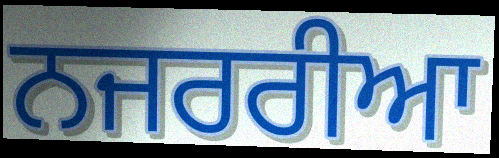
ਨਜਰਰੀਆ